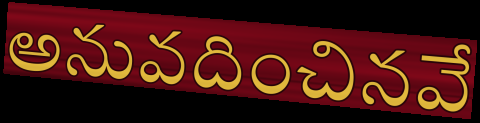
అనువదించినవే